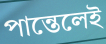
পান্তেলেই